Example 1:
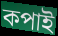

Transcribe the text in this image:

কপাই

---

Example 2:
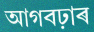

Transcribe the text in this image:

আগবঢ়াৰ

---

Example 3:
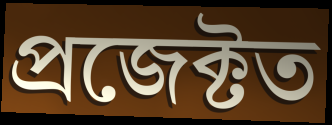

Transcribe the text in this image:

প্ৰজেক্টত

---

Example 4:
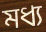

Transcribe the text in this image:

মধ্য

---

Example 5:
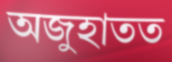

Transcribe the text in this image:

অজুহাতত